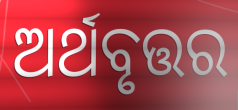
ଅର୍ଥବୃତ୍ତର